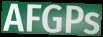
AFGPs